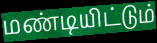
மண்டியிட்டும்